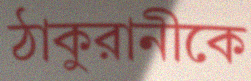
ঠাকুরানীকে